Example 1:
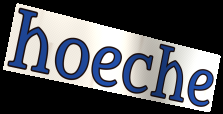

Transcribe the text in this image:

hoeche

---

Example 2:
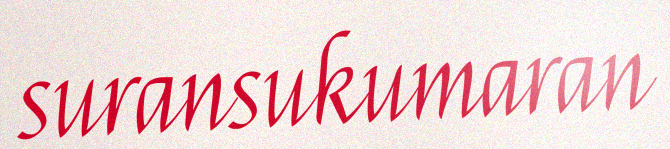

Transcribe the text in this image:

suransukumaran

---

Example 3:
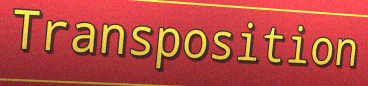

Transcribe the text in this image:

Transposition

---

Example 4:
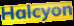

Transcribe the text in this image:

Halcyon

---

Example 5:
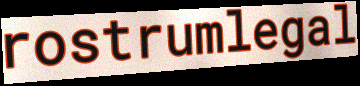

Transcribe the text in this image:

rostrumlegal